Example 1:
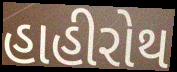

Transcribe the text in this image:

હાહીરોથ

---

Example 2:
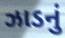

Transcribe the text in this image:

ઝાડનું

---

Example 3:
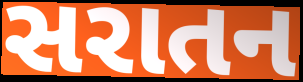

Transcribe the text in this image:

સરાતન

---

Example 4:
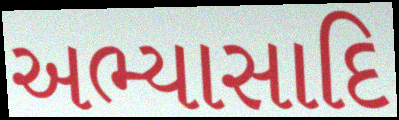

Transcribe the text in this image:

અભ્યાસાદિ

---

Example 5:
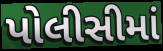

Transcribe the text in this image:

પોલીસીમાં